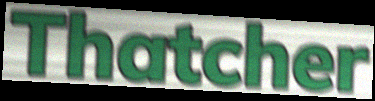
Thatcher